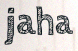
jaha